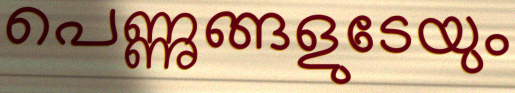
പെണ്ണുങ്ങളുടേയും